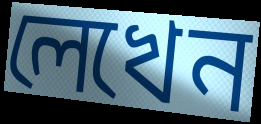
লেখেন